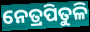
ନେତ୍ରପିତୁଳି